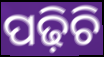
ପଢ଼ିଚି